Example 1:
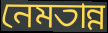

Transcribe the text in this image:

নেমতান্ন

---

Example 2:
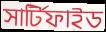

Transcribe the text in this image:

সার্টিফাইড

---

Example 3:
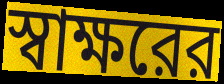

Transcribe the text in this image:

স্বাক্ষরের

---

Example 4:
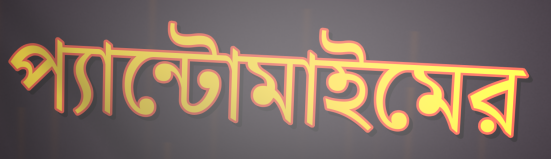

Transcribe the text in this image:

প্যান্টোমাইমের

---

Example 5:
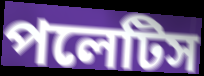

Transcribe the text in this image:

পলেটিস